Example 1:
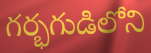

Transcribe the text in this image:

గర్భగుడిలోని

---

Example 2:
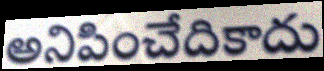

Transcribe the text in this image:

అనిపించేదికాదు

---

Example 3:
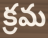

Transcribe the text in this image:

క్రమ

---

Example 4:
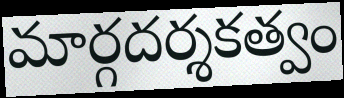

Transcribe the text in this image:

మార్గదర్శకత్వం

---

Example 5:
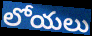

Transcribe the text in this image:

లోయలు